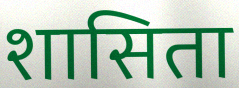
शासिता